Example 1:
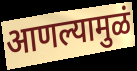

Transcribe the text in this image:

आणल्यामुळं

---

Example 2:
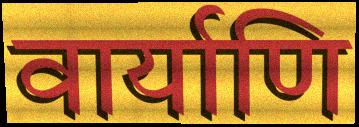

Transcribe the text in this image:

वार्याणि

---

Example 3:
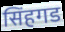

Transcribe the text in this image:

सिंहगड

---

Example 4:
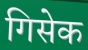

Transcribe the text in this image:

गिसेक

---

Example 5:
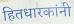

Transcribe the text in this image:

हितधारकांनी